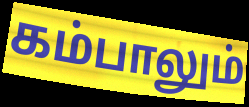
கம்பாலும்